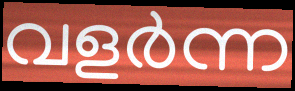
വളർന്ന